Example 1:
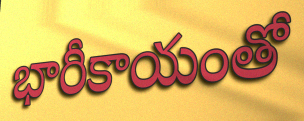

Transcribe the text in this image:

భారీకాయంతో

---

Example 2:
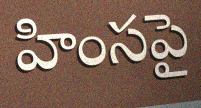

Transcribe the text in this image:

హింసపై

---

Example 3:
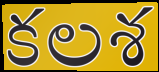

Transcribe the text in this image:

కలశ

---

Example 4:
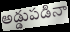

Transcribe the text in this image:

అడ్డుపడినా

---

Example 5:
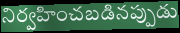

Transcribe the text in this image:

నిర్వహించబడినప్పుడు